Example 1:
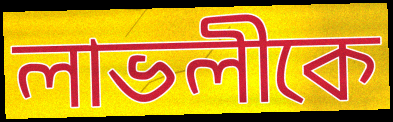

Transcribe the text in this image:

লাভলীকে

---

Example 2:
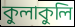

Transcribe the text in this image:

কুলাকুলি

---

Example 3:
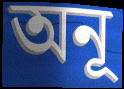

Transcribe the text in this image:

অনূ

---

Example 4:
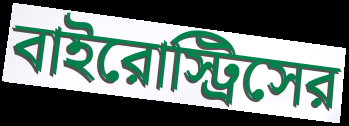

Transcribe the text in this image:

বাইরোস্ট্রিসের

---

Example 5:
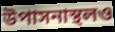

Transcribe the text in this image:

উপাসনাস্থলও